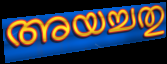
അയച്ചതു